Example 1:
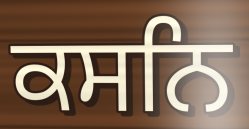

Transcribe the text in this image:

ਕਸਨਿ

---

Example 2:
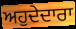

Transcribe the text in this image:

ਅਹੁਦੇਦਾਰਾ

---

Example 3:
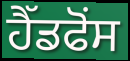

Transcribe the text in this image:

ਹੈੱਡਫੋਂਸ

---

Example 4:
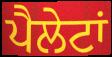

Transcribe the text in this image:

ਪੈਲੇਟਾਂ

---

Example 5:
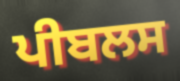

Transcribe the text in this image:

ਪੀਬਲਸ